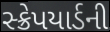
સ્ક્રેપયાર્ડની